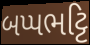
બપ્પભટ્ટિ